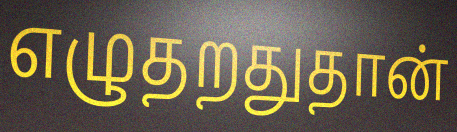
எழுதறதுதான்